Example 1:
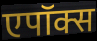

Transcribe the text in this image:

एपॉक्स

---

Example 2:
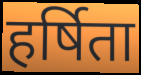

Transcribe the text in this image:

हर्षिता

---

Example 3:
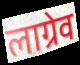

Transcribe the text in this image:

लाग्रेव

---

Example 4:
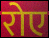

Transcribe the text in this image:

रोए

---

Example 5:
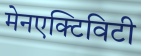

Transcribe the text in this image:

मेनएक्टिविटी